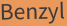
Benzyl